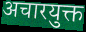
अचारयुक्त